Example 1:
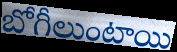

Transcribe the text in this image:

బోగీలుంటాయి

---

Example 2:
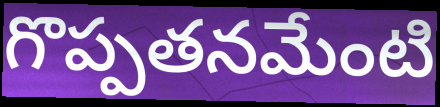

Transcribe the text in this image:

గొప్పతనమేంటి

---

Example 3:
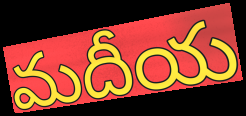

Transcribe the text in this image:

మదీయ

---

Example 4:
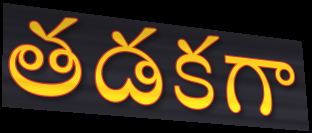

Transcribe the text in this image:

తడకగా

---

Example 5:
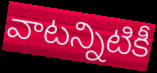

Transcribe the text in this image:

వాటన్నిటికీ